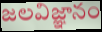
జలవిజ్ఞానం